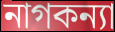
নাগকন্যা